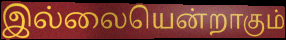
இல்லையென்றாகும்